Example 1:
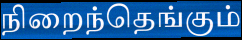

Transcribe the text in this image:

நிறைந்தெங்கும்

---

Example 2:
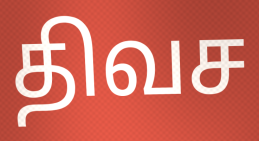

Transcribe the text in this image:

திவச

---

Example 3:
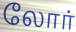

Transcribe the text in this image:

லோர்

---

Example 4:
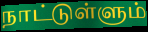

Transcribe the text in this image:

நாட்டுள்ளும்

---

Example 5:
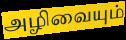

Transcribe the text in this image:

அழிவையும்